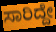
ಸಾರಿದ್ದೇ